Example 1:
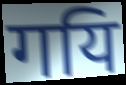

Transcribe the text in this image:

गयि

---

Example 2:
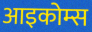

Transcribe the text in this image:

आइकोम्स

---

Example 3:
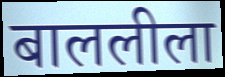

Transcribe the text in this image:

बाललीला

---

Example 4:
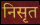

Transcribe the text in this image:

निसृत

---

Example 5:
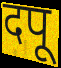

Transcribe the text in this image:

दपू